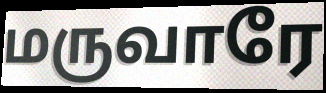
மருவாரே